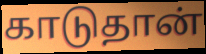
காடுதான்